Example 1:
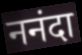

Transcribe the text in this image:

ननंदा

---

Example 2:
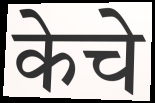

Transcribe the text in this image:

केचे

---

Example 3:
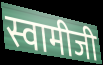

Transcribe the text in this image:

स्वामीजी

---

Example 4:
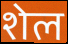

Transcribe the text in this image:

शेल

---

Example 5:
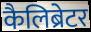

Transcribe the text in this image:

कैलिब्रेटर